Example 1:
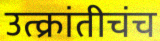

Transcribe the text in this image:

उत्क्रांतीचंच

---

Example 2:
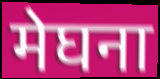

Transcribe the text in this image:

मेघना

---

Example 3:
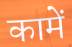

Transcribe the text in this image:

कामें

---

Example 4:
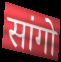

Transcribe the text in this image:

सांगो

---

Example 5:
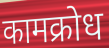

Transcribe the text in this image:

कामक्रोध